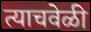
त्याचवेळी